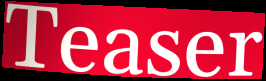
Teaser